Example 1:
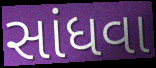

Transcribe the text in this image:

સાંધવા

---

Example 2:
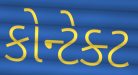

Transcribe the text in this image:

કોન્ટેક્ટ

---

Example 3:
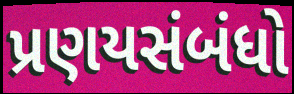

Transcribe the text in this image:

પ્રણયસંબંધો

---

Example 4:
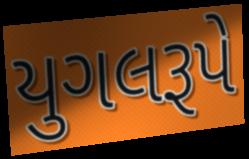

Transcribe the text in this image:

યુગલરૂપે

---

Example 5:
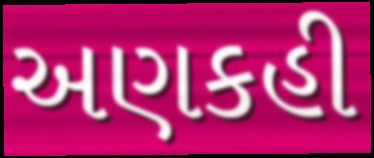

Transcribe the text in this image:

અણકહી